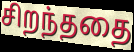
சிறந்ததை